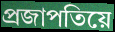
প্ৰজাপতিয়ে